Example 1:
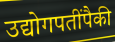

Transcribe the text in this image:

उद्योगपतींपैकी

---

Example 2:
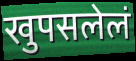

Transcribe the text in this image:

खुपसलेलं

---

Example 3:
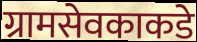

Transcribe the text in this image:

ग्रामसेवकाकडे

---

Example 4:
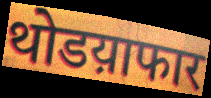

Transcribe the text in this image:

थोडय़ाफार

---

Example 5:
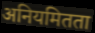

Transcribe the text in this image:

अनियमितता